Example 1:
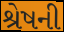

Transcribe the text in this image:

શ્રેષની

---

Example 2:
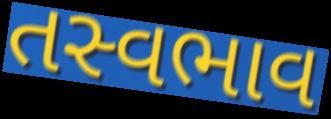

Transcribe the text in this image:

તસ્વભાવ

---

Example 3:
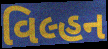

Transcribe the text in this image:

વિલ્હન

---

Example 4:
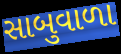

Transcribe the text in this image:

સાબુવાળા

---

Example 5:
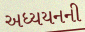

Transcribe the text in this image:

અધ્યયનની